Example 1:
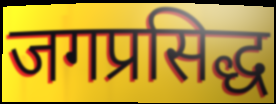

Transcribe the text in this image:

जगप्रसिद्ध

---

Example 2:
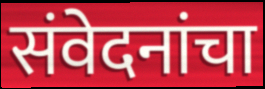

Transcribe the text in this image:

संवेदनांचा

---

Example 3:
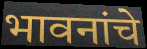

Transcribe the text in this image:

भावनांचे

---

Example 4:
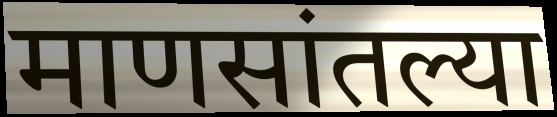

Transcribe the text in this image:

माणसांतल्या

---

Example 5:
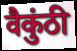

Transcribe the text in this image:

वैकुंठी